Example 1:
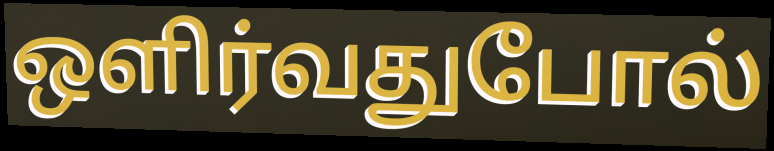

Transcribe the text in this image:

ஒளிர்வதுபோல்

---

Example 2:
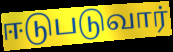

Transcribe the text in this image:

ஈடுபடுவார்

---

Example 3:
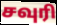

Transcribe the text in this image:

சவுரி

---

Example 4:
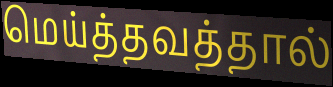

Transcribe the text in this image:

மெய்த்தவத்தால்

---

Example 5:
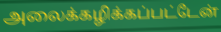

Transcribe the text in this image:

அலைக்கழிக்கப்பட்டேன்